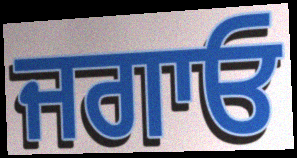
ਜਗਾਓ